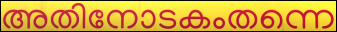
അതിനോടകംതന്നെ